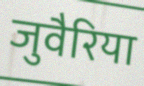
जुवैरिया